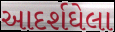
આદર્શઘેલા